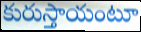
కురుస్తాయంటూ